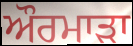
ਔਰਮਾੜਾ